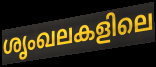
ശൃംഖലകളിലെ